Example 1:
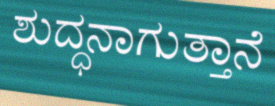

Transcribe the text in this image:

ಶುದ್ಧನಾಗುತ್ತಾನೆ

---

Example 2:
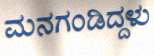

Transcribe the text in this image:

ಮನಗಂಡಿದ್ದಳು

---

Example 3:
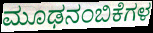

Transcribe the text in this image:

ಮೂಢನಂಬಿಕೆಗಳ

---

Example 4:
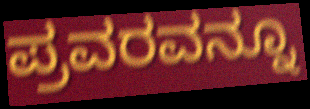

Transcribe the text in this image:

ಪ್ರವರವನ್ನೂ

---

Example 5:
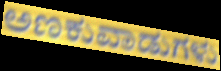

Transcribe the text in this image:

ಅಣಕುವಾಡುಗಳು